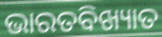
ଭାରତବିଖ୍ୟାତ